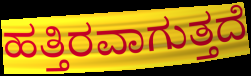
ಹತ್ತಿರವಾಗುತ್ತದೆ